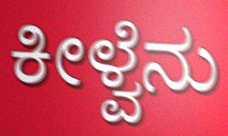
ಕೀಳ್ವೆನು